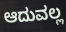
ಆದುವಲ್ಲ